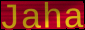
Jaha